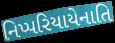
નિપ્પરિયાયેનાતિ